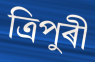
ত্ৰিপুৰী